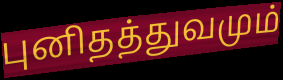
புனிதத்துவமும்